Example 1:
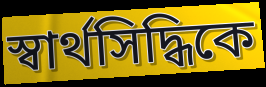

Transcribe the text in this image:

স্বার্থসিদ্ধিকে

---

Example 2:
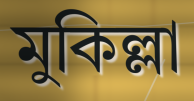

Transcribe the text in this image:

মুকিল্লা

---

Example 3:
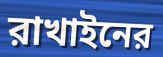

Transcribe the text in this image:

রাখাইনের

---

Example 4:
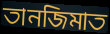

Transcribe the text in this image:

তানজিমাত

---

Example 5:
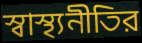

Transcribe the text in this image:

স্বাস্থ্যনীতির